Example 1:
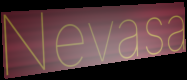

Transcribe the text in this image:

Nevasa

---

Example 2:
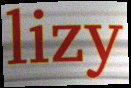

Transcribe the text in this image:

lizy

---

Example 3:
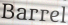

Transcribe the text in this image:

Barrel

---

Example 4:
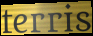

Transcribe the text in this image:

terris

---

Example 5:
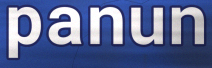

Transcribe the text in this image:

panun